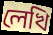
লেখি